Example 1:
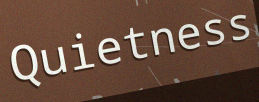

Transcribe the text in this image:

Quietness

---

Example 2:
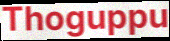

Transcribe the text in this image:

Thoguppu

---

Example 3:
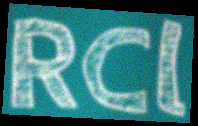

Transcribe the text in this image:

RCl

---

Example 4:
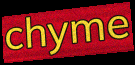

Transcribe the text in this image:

chyme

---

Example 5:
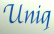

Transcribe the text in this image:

Uniq